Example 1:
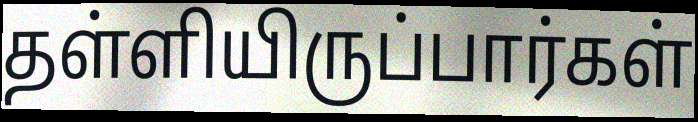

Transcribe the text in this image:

தள்ளியிருப்பார்கள்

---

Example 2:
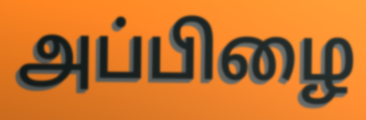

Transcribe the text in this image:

அப்பிழை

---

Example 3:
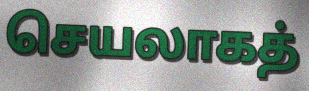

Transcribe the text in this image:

செயலாகத்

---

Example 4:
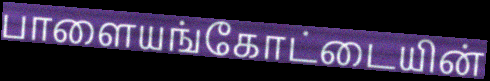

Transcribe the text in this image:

பாளையங்கோட்டையின்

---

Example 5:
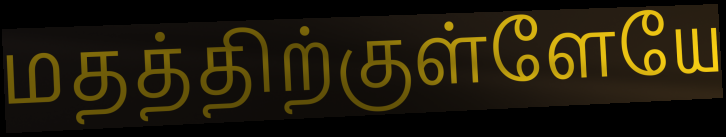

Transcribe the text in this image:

மதத்திற்குள்ளேயே